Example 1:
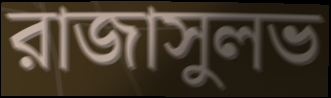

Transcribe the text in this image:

রাজাসুলভ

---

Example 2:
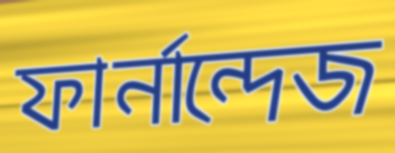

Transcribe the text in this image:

ফার্নান্দেজ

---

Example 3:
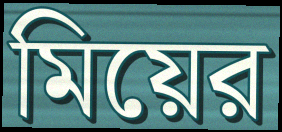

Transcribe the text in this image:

মিয়ের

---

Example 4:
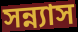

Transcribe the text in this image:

সন্ন্যাস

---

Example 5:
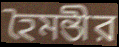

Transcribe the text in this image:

হৈমন্তীর